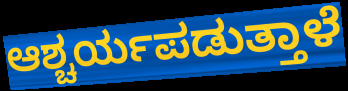
ಆಶ್ಚರ್ಯಪಡುತ್ತಾಳೆ